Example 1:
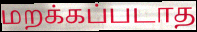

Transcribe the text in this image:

மறக்கப்படாத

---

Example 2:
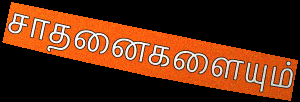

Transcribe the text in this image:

சாதனைகளையும்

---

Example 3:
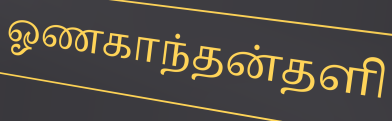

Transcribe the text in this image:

ஓணகாந்தன்தளி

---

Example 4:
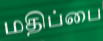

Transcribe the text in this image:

மதிப்பை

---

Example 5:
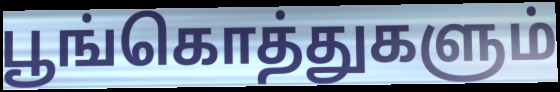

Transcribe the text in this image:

பூங்கொத்துகளும்